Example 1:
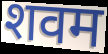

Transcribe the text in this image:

शवम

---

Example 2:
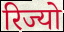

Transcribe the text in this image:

रिज्यो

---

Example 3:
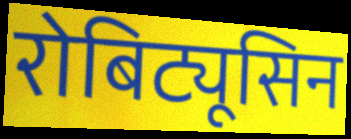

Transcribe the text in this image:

रोबिट्यूसिन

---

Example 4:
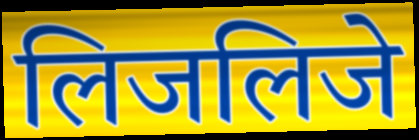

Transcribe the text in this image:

लिजलिजे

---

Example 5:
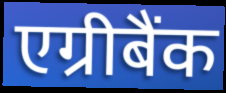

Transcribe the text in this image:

एग्रीबैंक